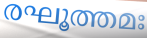
രഘൂത്തമഃ